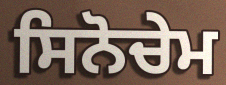
ਸਿਨੋਚੇਮ